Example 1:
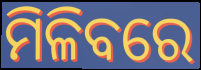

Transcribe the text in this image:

ମିଳିବରେ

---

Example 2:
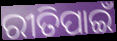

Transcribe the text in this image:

ରୀତିପାଇଁ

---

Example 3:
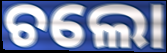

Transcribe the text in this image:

ଚଲୋ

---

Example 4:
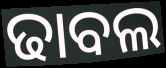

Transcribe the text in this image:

ଢାବଲ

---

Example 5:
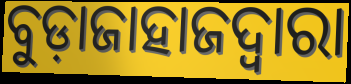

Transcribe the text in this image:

ବୁଡ଼ାଜାହାଜଦ୍ୱାରା